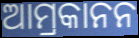
ଆମ୍ରକାନନ